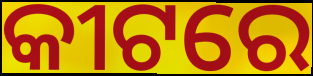
କୀଟରେ